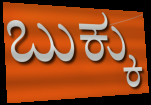
ಬುಕ್ಕು